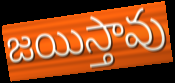
జయిస్తావు